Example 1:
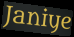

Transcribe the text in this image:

Janiye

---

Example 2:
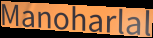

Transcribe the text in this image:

Manoharlal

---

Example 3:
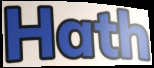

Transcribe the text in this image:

Hath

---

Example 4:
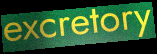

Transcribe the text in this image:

excretory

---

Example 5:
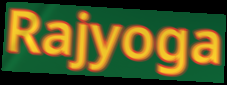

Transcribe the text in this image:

Rajyoga